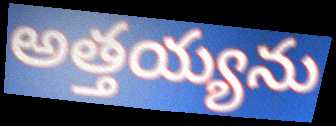
అత్తయ్యను